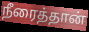
நீரைத்தான்